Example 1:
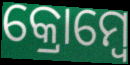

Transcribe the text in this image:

କ୍ରୋମ୍ବେ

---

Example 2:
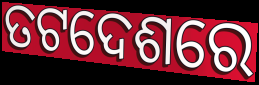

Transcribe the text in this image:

ତଟଦେଶରେ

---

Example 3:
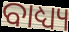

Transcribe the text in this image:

ବାଧ୍ୟ୍ୟ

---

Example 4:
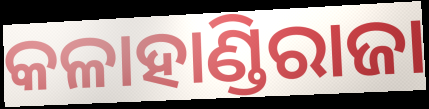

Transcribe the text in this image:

କଳାହାଣ୍ଡିରାଜା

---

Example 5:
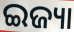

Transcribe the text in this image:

ଇଜ୍ୟା